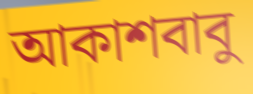
আকাশবাবু